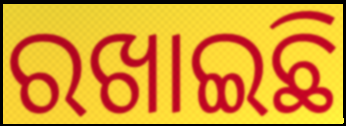
ରଖାଇଛି